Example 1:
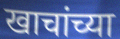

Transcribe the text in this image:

खाचांच्या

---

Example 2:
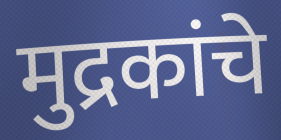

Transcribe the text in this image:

मुद्रकांचे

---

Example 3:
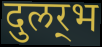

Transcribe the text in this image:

दुलर्भ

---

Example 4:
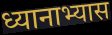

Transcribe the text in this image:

ध्यानाभ्यास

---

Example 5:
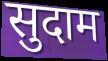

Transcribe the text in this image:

सुदाम